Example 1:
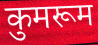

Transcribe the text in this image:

कुमरूम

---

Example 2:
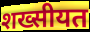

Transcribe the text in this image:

शख्सीयत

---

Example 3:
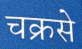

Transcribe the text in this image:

चक्रसे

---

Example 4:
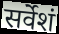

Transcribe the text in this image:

सर्वेशं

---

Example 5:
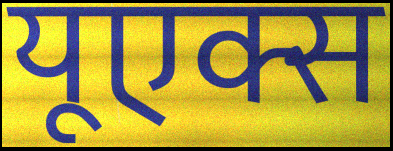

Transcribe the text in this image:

यूएक्स